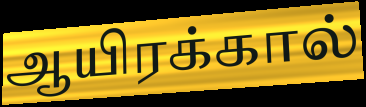
ஆயிரக்கால்